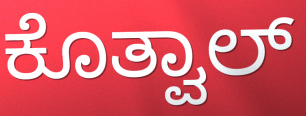
ಕೊತ್ವಾಲ್